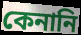
কেনানি